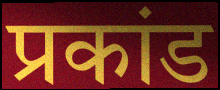
प्रकांड